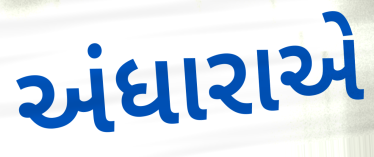
અંધારાએ